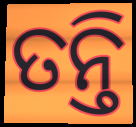
ତନ୍ତି